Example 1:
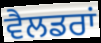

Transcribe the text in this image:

ਵੈਲਡਰਾਂ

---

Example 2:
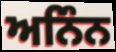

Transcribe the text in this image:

ਅਨਿੰਨ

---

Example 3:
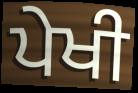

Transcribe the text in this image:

ਪੇਖੀ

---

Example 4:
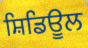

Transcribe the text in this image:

ਸ਼ਿਡਿਊਲ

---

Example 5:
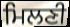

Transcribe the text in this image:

ਮਿਲਣੀ